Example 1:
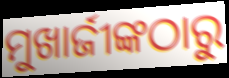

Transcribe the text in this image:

ମୁଖାର୍ଜୀଙ୍କଠାରୁ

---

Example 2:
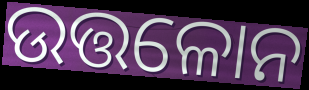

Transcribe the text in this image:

ଉତ୍ତଳୋନ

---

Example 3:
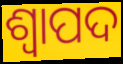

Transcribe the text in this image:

ଶ୍ୱାପଦ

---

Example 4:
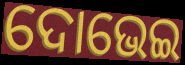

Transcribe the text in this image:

ଦୋଭେଇ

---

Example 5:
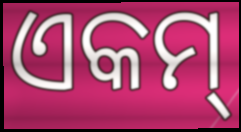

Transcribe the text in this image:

ଏକମ୍